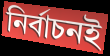
নির্বাচনই